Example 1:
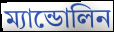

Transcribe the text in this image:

ম্যান্ডোলিন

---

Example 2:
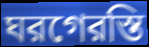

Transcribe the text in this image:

ঘরগেরস্তি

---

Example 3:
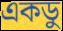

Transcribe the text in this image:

একডু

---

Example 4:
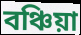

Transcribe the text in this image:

বঞ্চিয়া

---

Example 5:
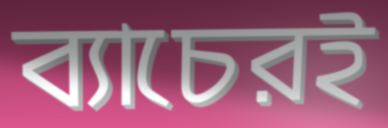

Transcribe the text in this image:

ব্যাচেরই